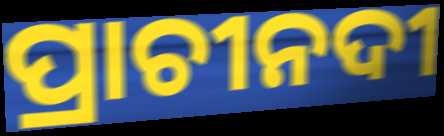
ପ୍ରାଚୀନଦୀ